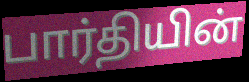
பார்தியின்